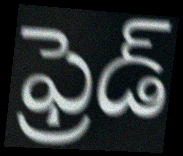
ఫ్రెడ్